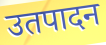
उतपादन